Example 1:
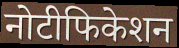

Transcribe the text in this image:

नोटीफिकेशन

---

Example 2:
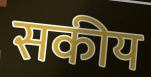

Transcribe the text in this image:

सकीय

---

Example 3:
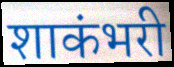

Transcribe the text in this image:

शाकंभरी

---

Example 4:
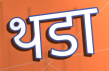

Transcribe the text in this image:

थडा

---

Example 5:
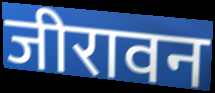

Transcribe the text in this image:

जीरावन